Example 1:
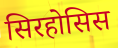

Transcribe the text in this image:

सिरहोसिस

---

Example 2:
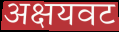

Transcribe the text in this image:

अक्षयवट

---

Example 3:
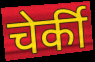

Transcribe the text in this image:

चेर्की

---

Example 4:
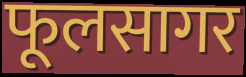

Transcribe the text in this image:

फूलसागर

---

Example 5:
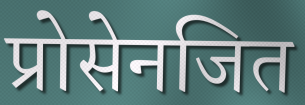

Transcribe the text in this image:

प्रोसेनजित